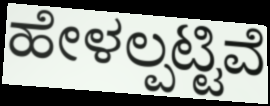
ಹೇಳಲ್ಪಟ್ಟಿವೆ